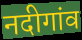
नदीगांव